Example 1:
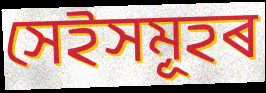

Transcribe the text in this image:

সেইসমূহৰ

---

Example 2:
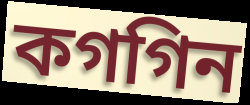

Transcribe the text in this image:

কগগিন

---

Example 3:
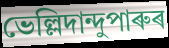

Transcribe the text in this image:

ভেল্লিদান্দুপাৰুৰ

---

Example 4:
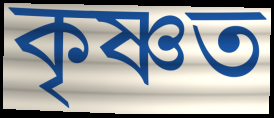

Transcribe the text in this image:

কৃষ্ণত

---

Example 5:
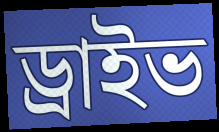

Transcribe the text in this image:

ড্ৰাইভ